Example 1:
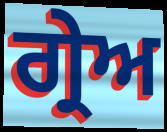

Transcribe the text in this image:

ਗ੍ਰੇਅ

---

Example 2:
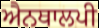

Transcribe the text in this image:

ਐਨਥਾਲਪੀ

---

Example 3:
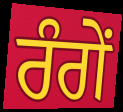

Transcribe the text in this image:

ਰੰਗੇਂ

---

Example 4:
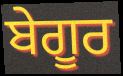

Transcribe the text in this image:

ਬੇਗੂਰ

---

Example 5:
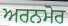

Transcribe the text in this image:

ਅਰਨਮੋਰ